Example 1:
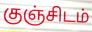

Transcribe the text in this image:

குஞ்சிடம்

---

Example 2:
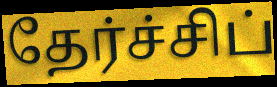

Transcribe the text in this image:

தேர்ச்சிப்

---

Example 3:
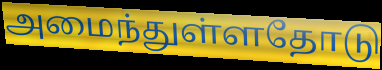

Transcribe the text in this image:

அமைந்துள்ளதோடு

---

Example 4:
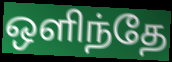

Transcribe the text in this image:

ஒளிந்தே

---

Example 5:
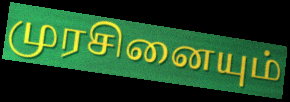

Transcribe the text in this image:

முரசினையும்